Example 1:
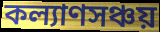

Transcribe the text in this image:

কল্যাণসঞ্চয়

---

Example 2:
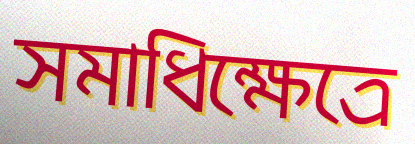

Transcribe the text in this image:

সমাধিক্ষেত্রে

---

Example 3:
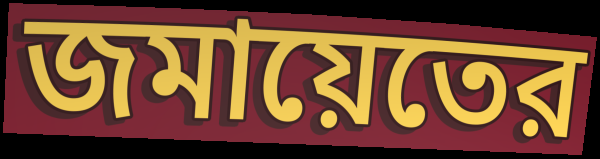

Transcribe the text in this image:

জমায়েতের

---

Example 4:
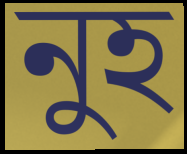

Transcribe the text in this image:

নুহ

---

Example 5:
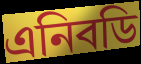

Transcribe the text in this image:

এনিবডি